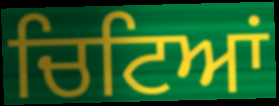
ਚਿਟਿਆਂ